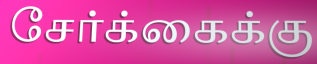
சேர்க்கைக்கு